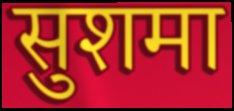
सुशमा